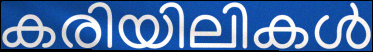
കരിയിലികൾ